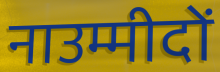
नाउम्मीदों